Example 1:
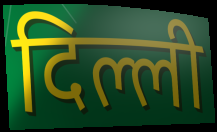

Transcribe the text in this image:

दिल्‍ली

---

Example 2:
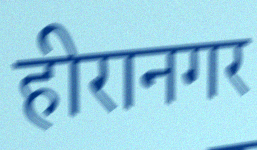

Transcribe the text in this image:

हीरानगर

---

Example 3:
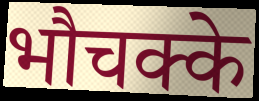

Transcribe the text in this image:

भौचक्के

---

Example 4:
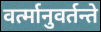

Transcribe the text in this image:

वर्त्मानुवर्तन्ते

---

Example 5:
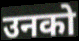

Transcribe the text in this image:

उनको